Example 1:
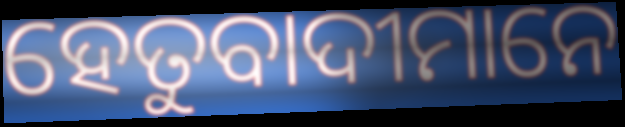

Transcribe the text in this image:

ହେତୁବାଦୀମାନେ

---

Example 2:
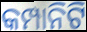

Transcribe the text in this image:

କମ୍ପାନିଟି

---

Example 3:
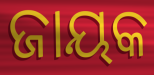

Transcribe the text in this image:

ଜାୟକ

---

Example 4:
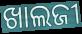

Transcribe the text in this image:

ଖାଲଜୀ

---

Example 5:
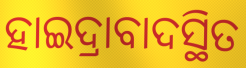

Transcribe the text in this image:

ହାଇଦ୍ରାବାଦସ୍ଥିତ